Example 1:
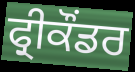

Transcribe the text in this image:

ਫ੍ਰੀਕੌਂਡਰ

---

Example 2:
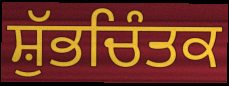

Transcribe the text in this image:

ਸ਼ੁੱਭਚਿੰਤਕ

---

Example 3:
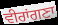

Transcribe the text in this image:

ਵੀਰਾਂਗਣਾ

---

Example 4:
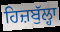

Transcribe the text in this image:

ਹਿਜ਼ਬੁੱਲ੍ਹਾ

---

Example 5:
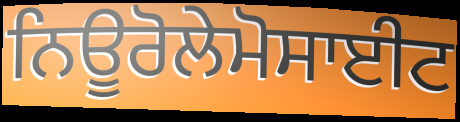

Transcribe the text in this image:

ਨਿਊਰੋਲੇਮੋਸਾਈਟ